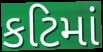
કટિમાં